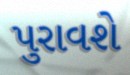
પુરાવશે